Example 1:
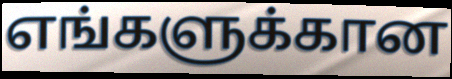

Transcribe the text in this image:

எங்களுக்கான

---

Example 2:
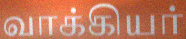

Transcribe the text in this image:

வாக்கியர்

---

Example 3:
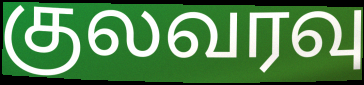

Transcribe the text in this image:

குலவரவு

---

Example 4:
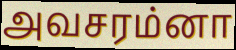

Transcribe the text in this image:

அவசரம்னா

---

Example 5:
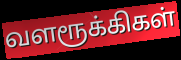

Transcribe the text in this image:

வளரூக்கிகள்